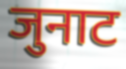
जुनाट